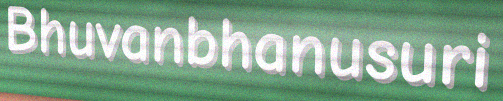
Bhuvanbhanusuri